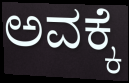
ಅವಕ್ಕೆ